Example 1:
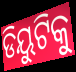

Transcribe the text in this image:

ଡିୟୁଟିକୁ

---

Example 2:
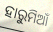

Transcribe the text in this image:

ହାରୁମିଆଁ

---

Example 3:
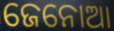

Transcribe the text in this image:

ଜେନୋଆ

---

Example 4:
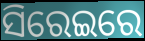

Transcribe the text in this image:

ସିରେଇରେ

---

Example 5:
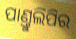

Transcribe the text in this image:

ପାଣ୍ତୁଲିପିର